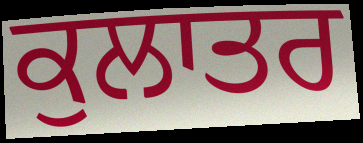
ਕੁਲਾਤਰ